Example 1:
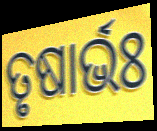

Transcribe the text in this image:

ତୃଷାର୍ଭଃ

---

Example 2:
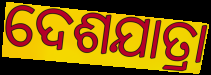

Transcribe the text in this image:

ଦେଶଯାତ୍ରା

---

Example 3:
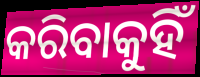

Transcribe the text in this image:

କରିବାକୁହିଁ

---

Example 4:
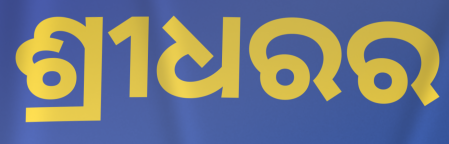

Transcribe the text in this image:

ଶ୍ରୀଧରର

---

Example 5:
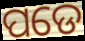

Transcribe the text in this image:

ପଡେ